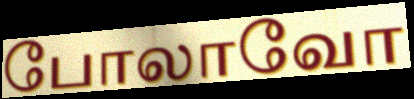
போலாவோ